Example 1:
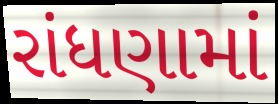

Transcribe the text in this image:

રાંધણામાં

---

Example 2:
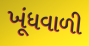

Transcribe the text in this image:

ખૂંધવાળી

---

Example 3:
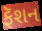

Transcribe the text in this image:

ફૅશન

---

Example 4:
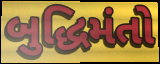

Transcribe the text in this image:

બુદ્ધિમંતો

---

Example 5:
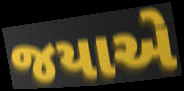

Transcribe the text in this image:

જયાએ